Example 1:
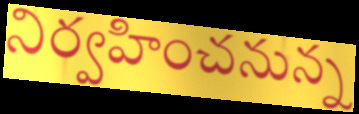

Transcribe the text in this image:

నిర్వహించనున్న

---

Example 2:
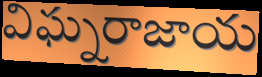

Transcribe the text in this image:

విఘ్నరాజాయ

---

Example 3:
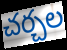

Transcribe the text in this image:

చర్చల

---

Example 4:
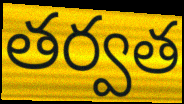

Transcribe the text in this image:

తర్వత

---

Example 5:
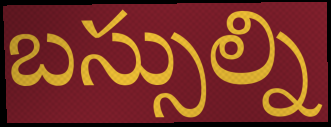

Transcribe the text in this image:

బస్సుల్ని